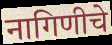
नागिणीचे